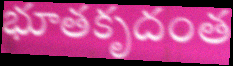
భూతకృదంత